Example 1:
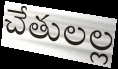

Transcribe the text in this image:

చేతులల్ల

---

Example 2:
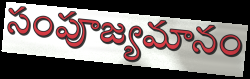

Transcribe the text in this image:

సంపూజ్యమానం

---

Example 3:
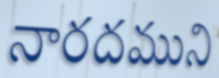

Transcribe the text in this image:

నారదముని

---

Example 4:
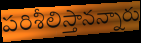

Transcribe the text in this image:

పరిశీలిస్తానన్నారు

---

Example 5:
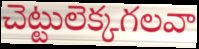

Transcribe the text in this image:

చెట్టులెక్కగలవా